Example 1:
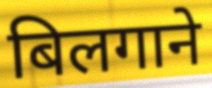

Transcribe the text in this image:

बिलगाने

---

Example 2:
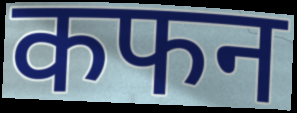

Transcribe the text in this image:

कफन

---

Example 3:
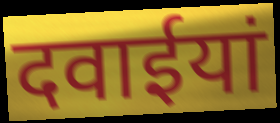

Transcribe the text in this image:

दवाईयां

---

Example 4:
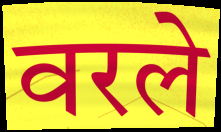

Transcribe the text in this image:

वरले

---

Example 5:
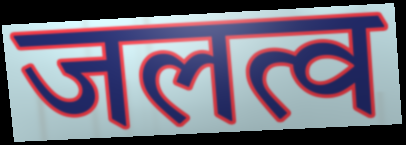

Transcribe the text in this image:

जलत्व